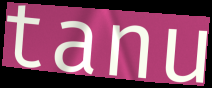
tanu